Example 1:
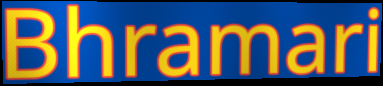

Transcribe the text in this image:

Bhramari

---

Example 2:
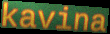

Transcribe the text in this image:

kavina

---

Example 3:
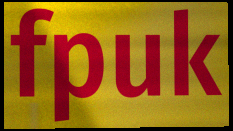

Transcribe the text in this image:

fpuk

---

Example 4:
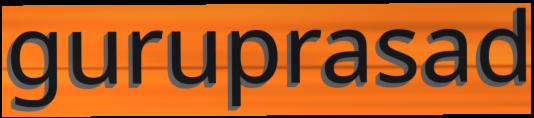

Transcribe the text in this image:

guruprasad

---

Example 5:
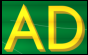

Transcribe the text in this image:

AD